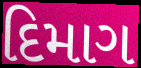
દિમાગ